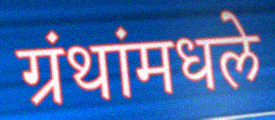
ग्रंथांमधले